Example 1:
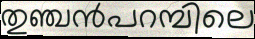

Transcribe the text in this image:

തുഞ്ചൻപറമ്പിലെ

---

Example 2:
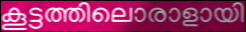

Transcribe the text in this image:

കൂട്ടത്തിലൊരാളായി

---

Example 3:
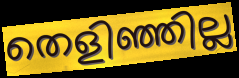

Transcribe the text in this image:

തെളിഞ്ഞില്ല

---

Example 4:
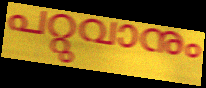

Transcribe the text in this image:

പറ്റുവാനും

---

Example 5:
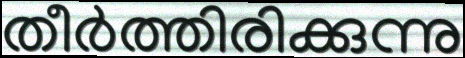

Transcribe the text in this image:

തീർത്തിരിക്കുന്നു